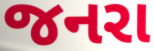
જનરા